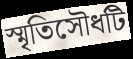
স্মৃতিসৌধটি